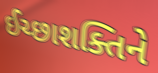
ઈચ્છાશક્તિને